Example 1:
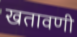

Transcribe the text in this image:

खतावणी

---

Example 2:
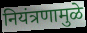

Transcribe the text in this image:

नियंत्रणामुळे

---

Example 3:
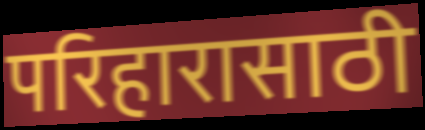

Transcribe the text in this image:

परिहारासाठी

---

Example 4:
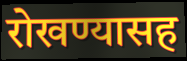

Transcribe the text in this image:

रोखण्यासह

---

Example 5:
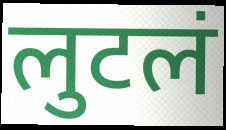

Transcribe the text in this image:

लुटलं